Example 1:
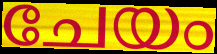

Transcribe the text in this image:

ചേയം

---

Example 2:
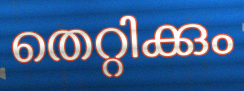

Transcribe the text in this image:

തെറ്റിക്കും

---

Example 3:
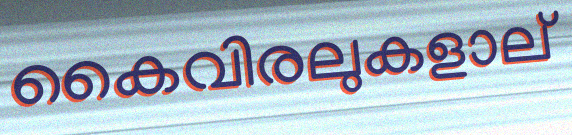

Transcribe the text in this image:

കൈവിരലുകളാല്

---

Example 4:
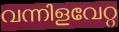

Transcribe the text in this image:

വന്നിളവേറ്റ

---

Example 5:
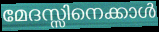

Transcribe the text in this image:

മേദസ്സിനെക്കാൾ